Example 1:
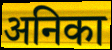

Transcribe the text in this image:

अनिका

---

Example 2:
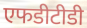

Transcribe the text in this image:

एफडीटीडी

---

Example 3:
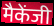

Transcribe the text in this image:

मैकेंजी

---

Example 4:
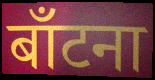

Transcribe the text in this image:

बाँटना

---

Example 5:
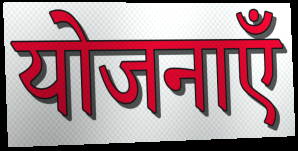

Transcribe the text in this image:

योजनाएँ